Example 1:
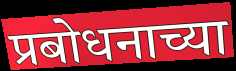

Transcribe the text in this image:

प्रबोधनाच्या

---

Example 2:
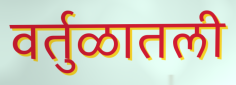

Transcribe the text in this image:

वर्तुळातली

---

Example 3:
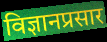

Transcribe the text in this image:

विज्ञानप्रसार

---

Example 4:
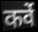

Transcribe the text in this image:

कर्वे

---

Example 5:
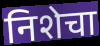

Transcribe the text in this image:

निशेचा